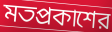
মতপ্রকাশের